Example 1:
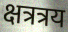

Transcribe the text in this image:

क्षत्रत्रय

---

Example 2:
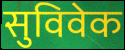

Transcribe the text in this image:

सुविवेक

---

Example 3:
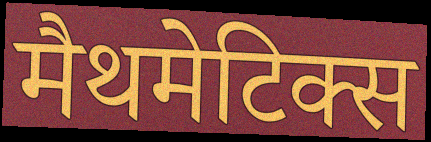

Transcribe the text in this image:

मैथमेटिक्स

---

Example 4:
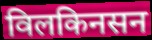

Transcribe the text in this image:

विलकिनसन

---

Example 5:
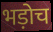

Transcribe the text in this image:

भड़ोच